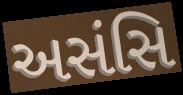
અસંસિ